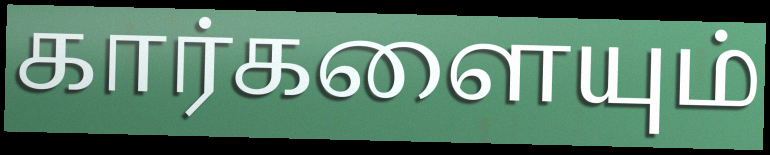
கார்களையும்